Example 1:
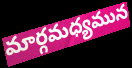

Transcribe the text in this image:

మార్గమధ్యమున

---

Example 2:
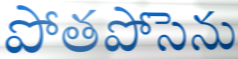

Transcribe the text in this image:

పోతపోసెను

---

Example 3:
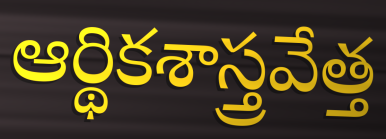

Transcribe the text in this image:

ఆర్థికశాస్త్రవేత్త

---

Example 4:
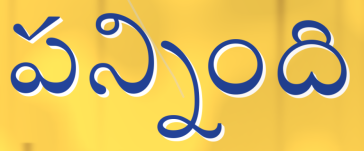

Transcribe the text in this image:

పన్నింది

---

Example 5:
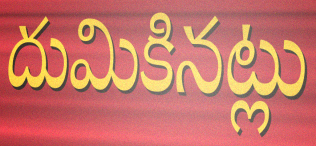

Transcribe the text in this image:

దుమికినట్లు